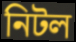
নিটল